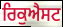
ਰਿਕੁਐਸਟ